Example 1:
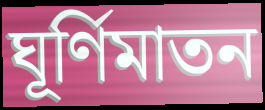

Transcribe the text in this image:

ঘূর্ণিমাতন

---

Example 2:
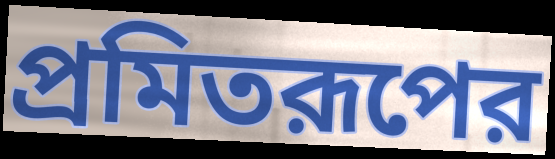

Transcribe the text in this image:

প্রমিতরূপের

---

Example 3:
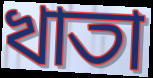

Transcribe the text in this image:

খাতা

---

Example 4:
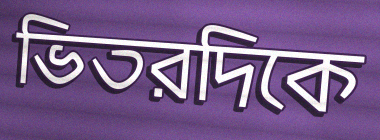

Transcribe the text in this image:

ভিতরদিকে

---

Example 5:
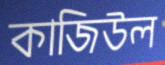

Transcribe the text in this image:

কাজিউল